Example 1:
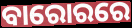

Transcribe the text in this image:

ବାରୋରରେ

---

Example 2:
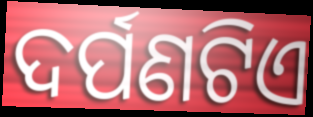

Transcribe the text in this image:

ଦର୍ପଣଟିଏ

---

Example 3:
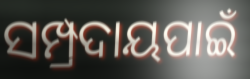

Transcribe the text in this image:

ସମ୍ପ୍ରଦାୟପାଇଁ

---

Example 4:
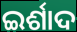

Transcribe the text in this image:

ଇର୍ଶାଦ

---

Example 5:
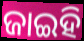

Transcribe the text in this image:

ଜାଇହି